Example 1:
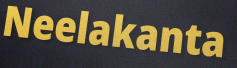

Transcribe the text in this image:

Neelakanta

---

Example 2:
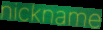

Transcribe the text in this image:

nickname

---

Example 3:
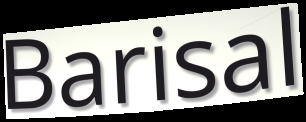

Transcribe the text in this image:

Barisal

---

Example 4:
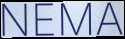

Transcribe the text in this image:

NEMA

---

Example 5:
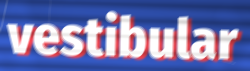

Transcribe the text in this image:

vestibular